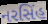
નરસિંહ